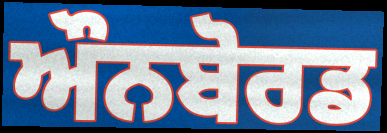
ਔਨਬੋਰਡ